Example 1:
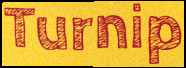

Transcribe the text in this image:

Turnip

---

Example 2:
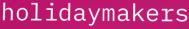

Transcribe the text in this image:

holidaymakers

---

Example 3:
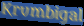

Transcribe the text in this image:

Krumbigal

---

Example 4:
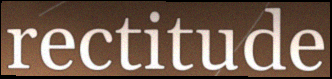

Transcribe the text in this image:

rectitude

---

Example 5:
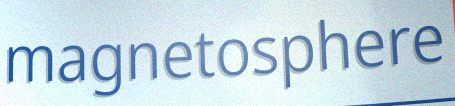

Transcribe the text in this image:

magnetosphere